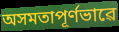
অসমতাপূৰ্ণভাৱে